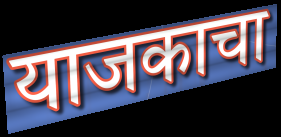
याजकाचा